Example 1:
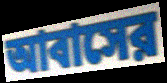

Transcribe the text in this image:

আবাসের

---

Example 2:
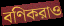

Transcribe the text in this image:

বণিকরাও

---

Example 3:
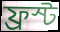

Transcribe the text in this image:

ফ্রস্ট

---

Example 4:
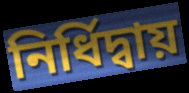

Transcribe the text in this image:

নির্ধিদ্বায়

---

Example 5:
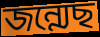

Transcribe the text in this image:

জন্মেছ